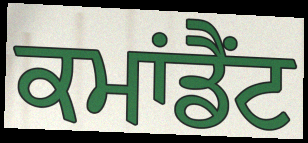
ਕਮਾਂਡੈਂਟ